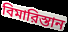
বিমারিস্তান